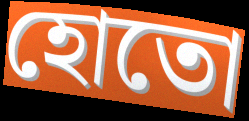
হোতো